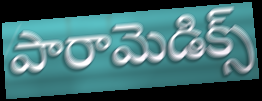
పారామెడిక్స్